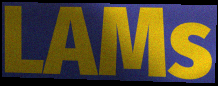
LAMs